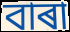
বাৰা